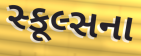
સ્કૂલ્સના